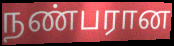
நண்பரான